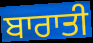
ਬਾਰਾਤੀ